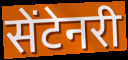
सेंटेनरी